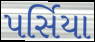
પર્સિયા